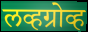
लव्हग्रोव्ह